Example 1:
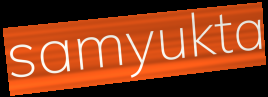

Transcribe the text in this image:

samyukta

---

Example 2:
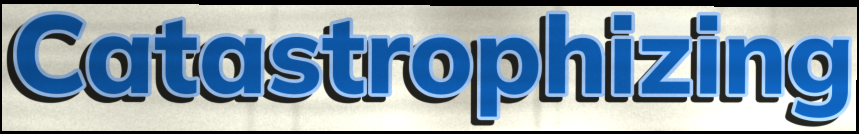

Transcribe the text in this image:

Catastrophizing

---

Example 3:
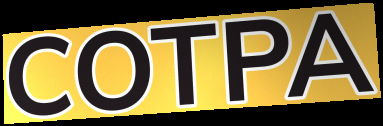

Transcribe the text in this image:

COTPA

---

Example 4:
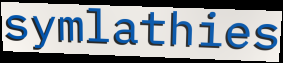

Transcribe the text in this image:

symlathies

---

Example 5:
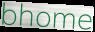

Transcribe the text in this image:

bhome